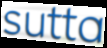
sutta